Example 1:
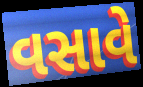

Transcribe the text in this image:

વસાવે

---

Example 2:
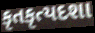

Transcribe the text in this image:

કૃતકૃત્યદશા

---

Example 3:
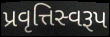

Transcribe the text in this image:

પ્રવૃત્તિસ્વરૂપ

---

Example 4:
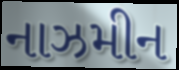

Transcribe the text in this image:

નાઝમીન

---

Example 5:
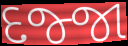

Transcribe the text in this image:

દજ્જા